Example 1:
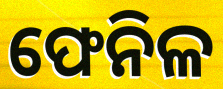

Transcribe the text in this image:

ଫେନିଳ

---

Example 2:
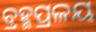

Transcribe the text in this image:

ବ୍ରହ୍ମପ୍ରଳୟ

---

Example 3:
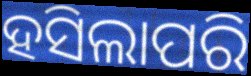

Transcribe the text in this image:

ହସିଲାପରି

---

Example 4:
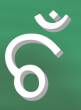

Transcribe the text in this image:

ଚଁ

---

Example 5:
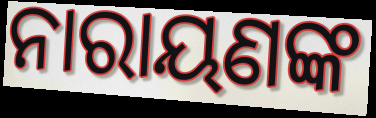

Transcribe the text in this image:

ନାରାୟଣଙ୍କ